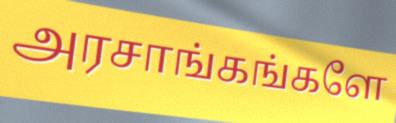
அரசாங்கங்களே